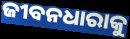
ଜୀବନଧାରାକୁ